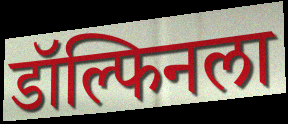
डॉल्फिनला